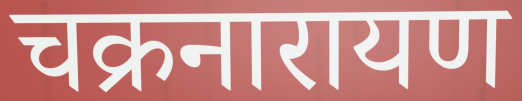
चक्रनारायण